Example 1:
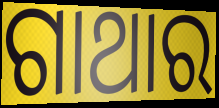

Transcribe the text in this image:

ଗାଥାର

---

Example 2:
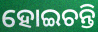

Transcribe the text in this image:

ହୋଇଚନ୍ତି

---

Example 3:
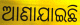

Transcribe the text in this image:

ଆଣାଯାଇଛି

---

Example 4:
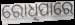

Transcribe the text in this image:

ରୋଧିପାରେ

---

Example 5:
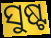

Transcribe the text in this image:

ସୁଷ୍ଟ